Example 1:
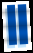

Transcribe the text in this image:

Il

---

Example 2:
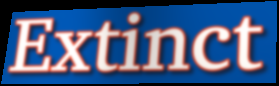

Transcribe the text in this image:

Extinct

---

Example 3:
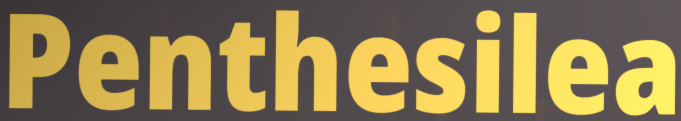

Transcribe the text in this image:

Penthesilea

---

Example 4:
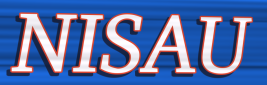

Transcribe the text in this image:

NISAU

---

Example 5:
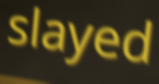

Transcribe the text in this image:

slayed